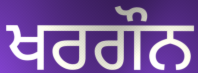
ਖਰਗੌਨ